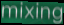
mixing